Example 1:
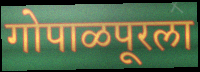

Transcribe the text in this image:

गोपाळपूरला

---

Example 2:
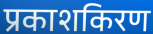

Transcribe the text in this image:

प्रकाशकिरण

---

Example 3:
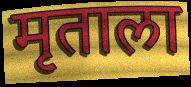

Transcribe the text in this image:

मृताला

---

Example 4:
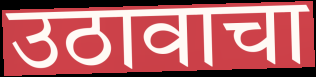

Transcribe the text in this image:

उठावाचा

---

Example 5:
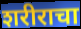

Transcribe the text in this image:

शरीराचा